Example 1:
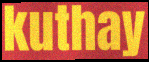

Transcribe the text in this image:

kuthay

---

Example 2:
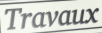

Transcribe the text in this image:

Travaux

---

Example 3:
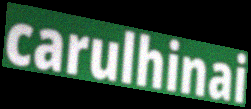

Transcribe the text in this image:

carulhinai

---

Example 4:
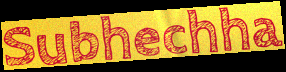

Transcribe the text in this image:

Subhechha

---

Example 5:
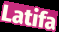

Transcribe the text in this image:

Latifa